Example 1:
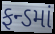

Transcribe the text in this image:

ફન્ડમાં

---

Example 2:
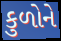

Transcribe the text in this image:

કુળોને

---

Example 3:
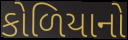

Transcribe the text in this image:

કોળિયાનો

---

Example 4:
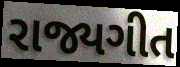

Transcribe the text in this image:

રાજ્યગીત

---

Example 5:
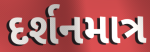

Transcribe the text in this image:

દર્શનમાત્ર